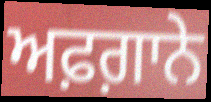
ਅਫ਼ਗ਼ਾਨੇ